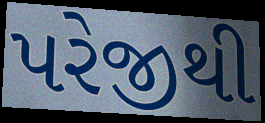
પરેજીથી